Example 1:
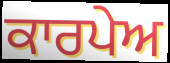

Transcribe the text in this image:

ਕਾਰਪੇਅ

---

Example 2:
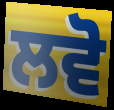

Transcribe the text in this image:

ਲਵੋ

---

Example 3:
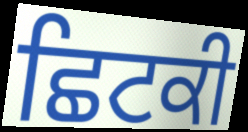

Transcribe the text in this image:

ਛਿਟਕੀ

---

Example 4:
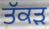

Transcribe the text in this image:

ਤੱਕੜ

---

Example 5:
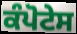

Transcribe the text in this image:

ਕੰਪੋਟੇਸ